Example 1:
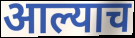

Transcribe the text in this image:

आल्याच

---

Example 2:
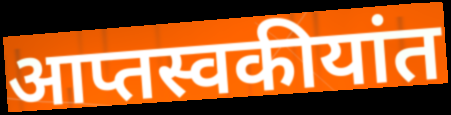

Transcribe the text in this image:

आप्तस्वकीयांत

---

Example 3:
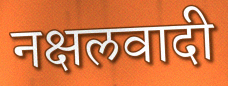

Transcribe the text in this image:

नक्षलवादी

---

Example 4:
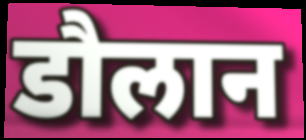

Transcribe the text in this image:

डौलान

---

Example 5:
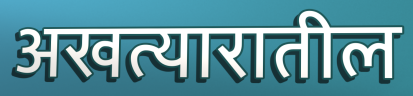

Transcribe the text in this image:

अखत्यारातील